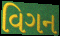
વિગન